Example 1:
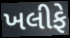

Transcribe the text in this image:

ખલીફે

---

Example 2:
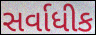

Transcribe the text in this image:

સર્વાધીક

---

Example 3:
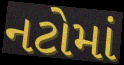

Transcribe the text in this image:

નટોમાં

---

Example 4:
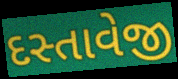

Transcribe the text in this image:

દસ્તાવેજી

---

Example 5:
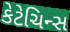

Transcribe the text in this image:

કેટેચિન્સ